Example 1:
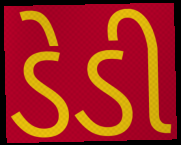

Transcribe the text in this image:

ડેડી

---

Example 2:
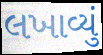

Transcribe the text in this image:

લખાવ્યું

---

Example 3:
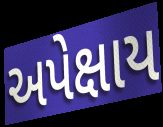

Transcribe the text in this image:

અપેક્ષાય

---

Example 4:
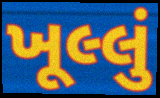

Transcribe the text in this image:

ખૂલ્લું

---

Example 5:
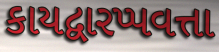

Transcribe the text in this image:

કાયદ્વારપ્પવત્તા